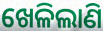
ଖେଳିଲାଣି